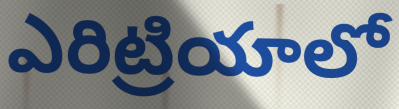
ఎరిట్రియాలో